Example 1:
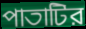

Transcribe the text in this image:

পাতাটির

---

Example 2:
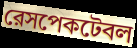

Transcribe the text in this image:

রেসপেকটেবল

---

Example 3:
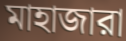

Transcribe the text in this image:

মাহাজারা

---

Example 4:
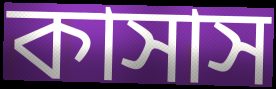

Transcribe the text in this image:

কাসাস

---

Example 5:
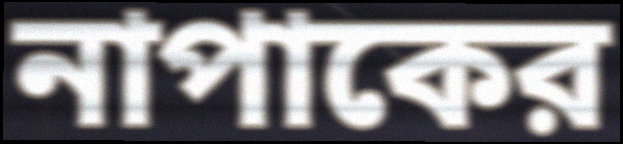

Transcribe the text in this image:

নাপাকের